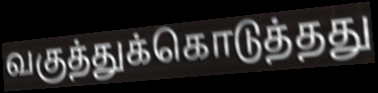
வகுத்துக்கொடுத்தது